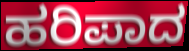
ಹರಿಪಾದ